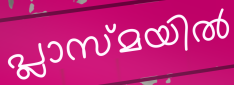
പ്ലാസ്മയിൽ